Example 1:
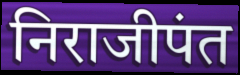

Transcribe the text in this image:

निराजीपंत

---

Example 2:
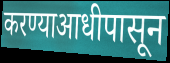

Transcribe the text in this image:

करण्याआधीपासून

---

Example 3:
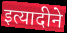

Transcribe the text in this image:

इत्यादीने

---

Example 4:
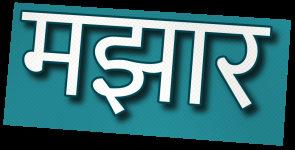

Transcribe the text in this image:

मझार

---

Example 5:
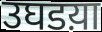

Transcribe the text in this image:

उघडय़ा